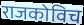
राजकोविच